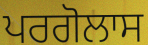
ਪਰਗੋਲਾਸ